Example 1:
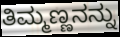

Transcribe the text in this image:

ತಿಮ್ಮಣ್ಣನನ್ನು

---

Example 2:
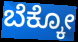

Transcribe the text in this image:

ಬೆಕ್ಕೋ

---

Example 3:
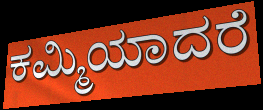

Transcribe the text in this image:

ಕಮ್ಮಿಯಾದರೆ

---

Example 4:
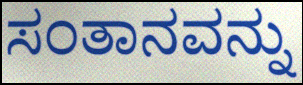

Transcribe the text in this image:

ಸಂತಾನವನ್ನು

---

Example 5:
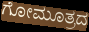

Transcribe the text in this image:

ಗೋಮೂತ್ರದ